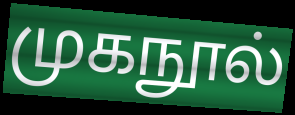
முகநூல்